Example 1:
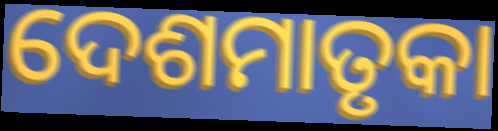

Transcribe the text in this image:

ଦେଶମାତୃକା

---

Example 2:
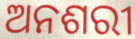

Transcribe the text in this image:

ଅନଶରୀ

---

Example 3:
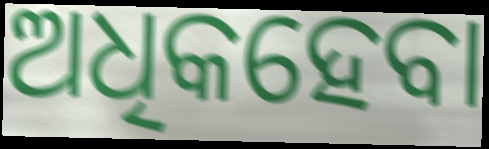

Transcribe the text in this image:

ଅଧିକହେବା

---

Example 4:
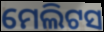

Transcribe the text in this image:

ମେଲିଟସ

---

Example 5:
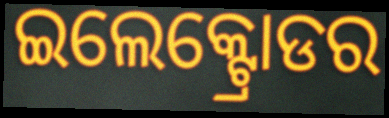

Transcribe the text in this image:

ଇଲେକ୍ଟ୍ରୋଡର